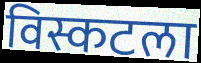
विस्कटला